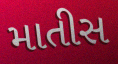
માતીસ